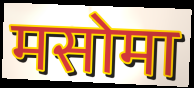
मसोमा